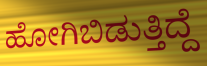
ಹೋಗಿಬಿಡುತ್ತಿದ್ದೆ